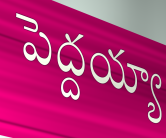
పెద్దయ్యా